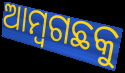
ଆମ୍ବଗଛକୁ